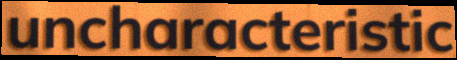
uncharacteristic